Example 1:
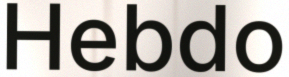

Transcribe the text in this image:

Hebdo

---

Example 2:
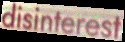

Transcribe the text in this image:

disinterest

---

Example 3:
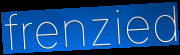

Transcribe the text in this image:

frenzied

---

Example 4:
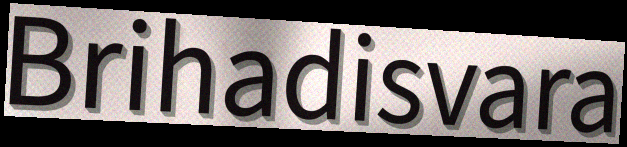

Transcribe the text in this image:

Brihadisvara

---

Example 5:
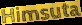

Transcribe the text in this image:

Himsuta